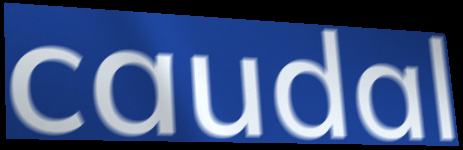
caudal